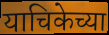
याचिकेच्या